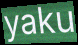
yaku